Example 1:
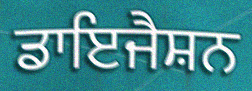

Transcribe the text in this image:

ਡਾਇਜੈਸ਼ਨ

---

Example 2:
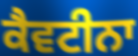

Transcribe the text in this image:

ਕੈਵਟੀਨਾ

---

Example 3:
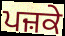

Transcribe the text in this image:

ਪਜ਼ਕੇ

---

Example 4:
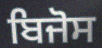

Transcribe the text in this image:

ਬਿਜੋਸ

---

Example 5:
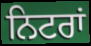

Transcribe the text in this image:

ਨਿਟਰਾਂ